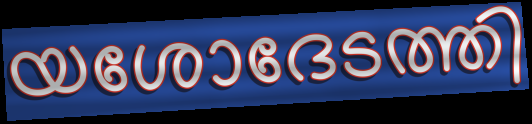
യശോദേടത്തി